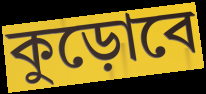
কুড়োবে